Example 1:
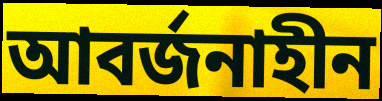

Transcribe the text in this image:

আবর্জনাহীন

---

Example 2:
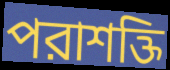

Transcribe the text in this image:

পরাশক্তি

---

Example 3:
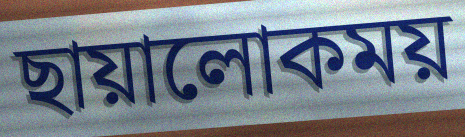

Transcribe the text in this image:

ছায়ালোকময়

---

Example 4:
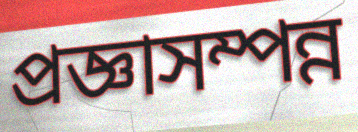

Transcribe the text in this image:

প্রজ্ঞাসম্পন্ন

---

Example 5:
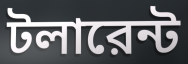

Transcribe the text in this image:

টলারেন্ট